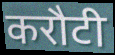
करौटी